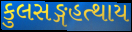
કુલસઙ્ગહત્થાય